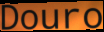
Douro